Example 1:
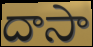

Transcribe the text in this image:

దాసా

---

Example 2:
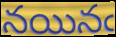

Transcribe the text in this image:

నయినఁ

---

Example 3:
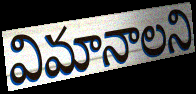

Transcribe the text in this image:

విమానాలని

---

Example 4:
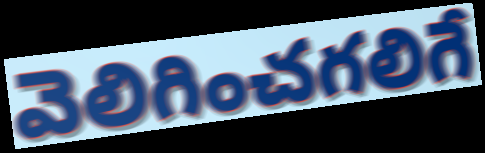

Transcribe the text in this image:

వెలిగించగలిగే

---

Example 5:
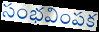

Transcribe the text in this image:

సంభవింపక